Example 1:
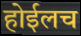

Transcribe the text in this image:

होईलच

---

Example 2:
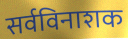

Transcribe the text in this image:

सर्वविनाशक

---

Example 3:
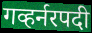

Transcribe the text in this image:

गव्हर्नरपदी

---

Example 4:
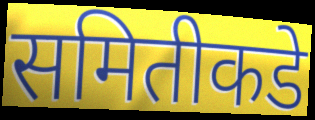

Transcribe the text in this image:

समितीकडे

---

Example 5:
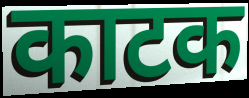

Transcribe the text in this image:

काटक